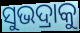
ସୁଭଦ୍ରାକୁ